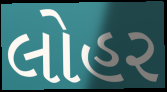
લોહર